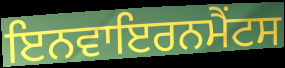
ਇਨਵਾਇਰਨਮੈਂਟਸ